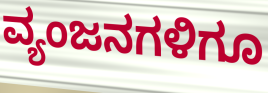
ವ್ಯಂಜನಗಳಿಗೂ